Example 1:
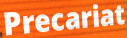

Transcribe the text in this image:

Precariat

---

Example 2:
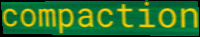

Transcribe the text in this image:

compaction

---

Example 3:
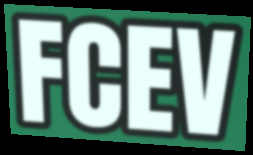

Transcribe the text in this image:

FCEV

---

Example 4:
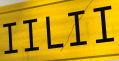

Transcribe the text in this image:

IILII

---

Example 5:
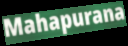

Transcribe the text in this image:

Mahapurana